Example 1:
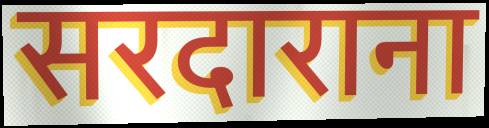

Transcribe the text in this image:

सरदाराना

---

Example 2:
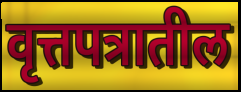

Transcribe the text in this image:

वृत्तपत्रातील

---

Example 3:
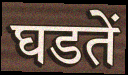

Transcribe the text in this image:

घडतें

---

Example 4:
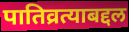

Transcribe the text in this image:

पातिव्रत्याबद्दल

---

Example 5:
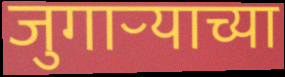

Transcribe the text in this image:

जुगाऱ्याच्या